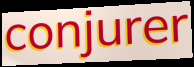
conjurer